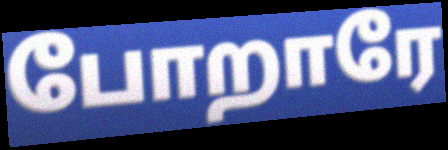
போறாரே